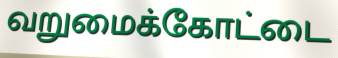
வறுமைக்கோட்டை